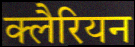
क्लैरियन